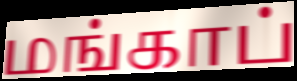
மங்காப்